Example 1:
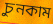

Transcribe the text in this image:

চুনকাম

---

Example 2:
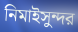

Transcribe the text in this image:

নিমাইসুন্দর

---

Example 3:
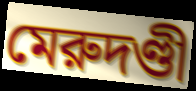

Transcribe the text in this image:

মেরুদণ্ডী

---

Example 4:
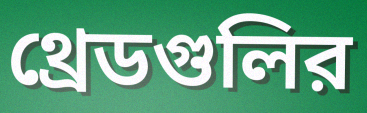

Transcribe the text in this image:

থ্রেডগুলির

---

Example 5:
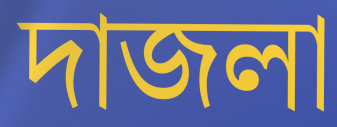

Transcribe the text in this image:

দাজলা